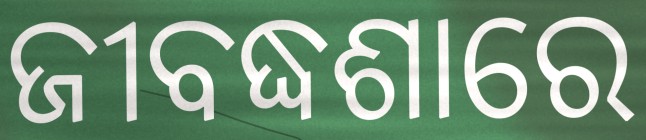
ଜୀବଦ୍ଧଶାରେ